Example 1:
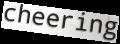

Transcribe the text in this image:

cheering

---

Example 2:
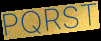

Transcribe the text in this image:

PQRST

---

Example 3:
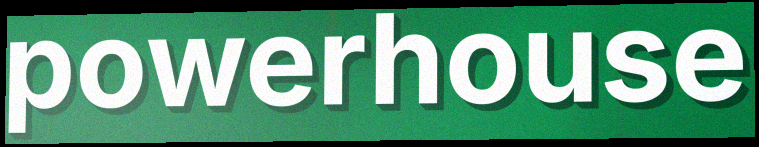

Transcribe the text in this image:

powerhouse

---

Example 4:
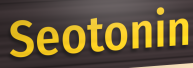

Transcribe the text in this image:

Seotonin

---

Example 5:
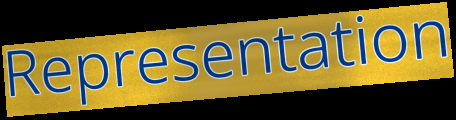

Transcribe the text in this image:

Representation